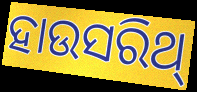
ହାଉସରିଥ୍